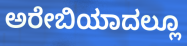
ಅರೇಬಿಯಾದಲ್ಲೂ